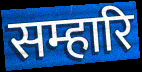
सम्हारि